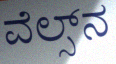
ವೆಲ್ಸ್‌ನ